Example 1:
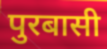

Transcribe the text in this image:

पुरबासी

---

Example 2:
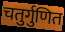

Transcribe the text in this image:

चतुर्गुणित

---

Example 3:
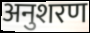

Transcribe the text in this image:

अनुशरण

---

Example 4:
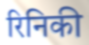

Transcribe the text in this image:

रिनिकी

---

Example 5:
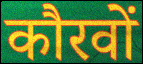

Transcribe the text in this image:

कौरवों